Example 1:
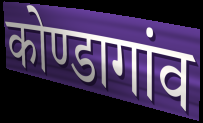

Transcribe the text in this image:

कोण्डागांव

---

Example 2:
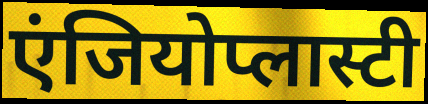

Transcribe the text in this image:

एंजियोप्लास्टी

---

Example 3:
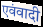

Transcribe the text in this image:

एवंवादी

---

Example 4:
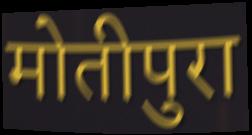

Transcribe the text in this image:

मोतीपुरा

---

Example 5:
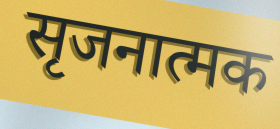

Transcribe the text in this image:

सृजनात्मक